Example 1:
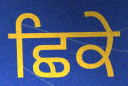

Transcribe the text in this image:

ਛਿਕੇ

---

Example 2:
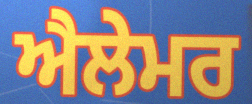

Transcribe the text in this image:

ਐਲੇਮਰ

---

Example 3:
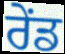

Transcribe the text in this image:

ਰੇਂਡ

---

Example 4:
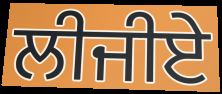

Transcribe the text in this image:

ਲੀਜੀਏ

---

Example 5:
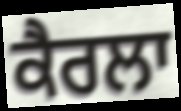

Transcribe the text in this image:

ਕੈਰਲਾ